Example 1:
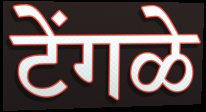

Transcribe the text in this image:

टेंगळे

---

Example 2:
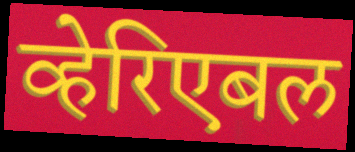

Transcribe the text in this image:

व्हेरिएबल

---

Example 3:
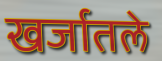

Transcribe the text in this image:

खर्जातले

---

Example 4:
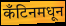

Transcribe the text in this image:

कँटिनमधून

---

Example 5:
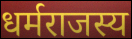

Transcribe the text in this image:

धर्मराजस्य